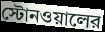
স্টোনওয়ালের